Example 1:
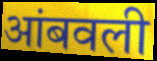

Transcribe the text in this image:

आंबवली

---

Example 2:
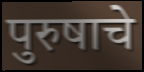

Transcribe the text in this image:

पुरुषाचे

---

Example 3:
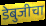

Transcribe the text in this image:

डेबुजीचा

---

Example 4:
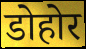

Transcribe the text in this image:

डोहोर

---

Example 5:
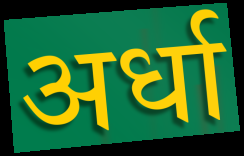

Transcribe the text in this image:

अर्धा